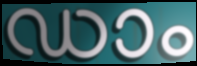
ഡാം